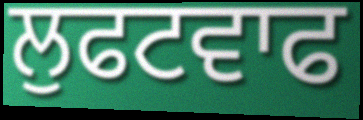
ਲੁਫਟਵਾਫ